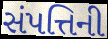
સંપત્તિની